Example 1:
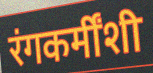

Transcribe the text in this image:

रंगकर्मींशी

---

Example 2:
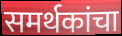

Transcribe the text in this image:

समर्थकांचा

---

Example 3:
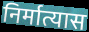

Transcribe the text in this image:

निर्मात्यास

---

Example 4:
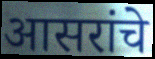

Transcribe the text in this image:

आसरांचे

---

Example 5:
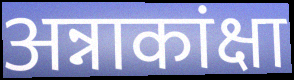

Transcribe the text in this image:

अन्नाकांक्षा